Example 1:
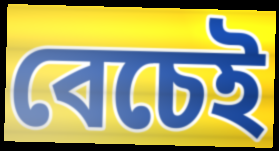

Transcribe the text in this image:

বেচেই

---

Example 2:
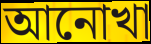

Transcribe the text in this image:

আনোখা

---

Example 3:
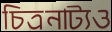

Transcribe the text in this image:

চিত্রনাট্যও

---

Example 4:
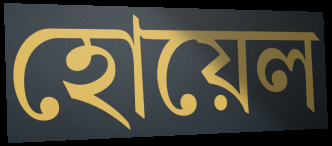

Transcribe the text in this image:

হোয়েল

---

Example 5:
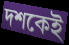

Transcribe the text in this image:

দশকেই